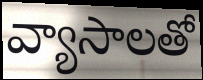
వ్యాసాలతో